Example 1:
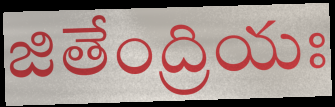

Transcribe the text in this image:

జితేంద్రియః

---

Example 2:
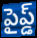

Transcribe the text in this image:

పైప్డ్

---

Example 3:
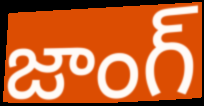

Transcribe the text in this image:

జాంగ్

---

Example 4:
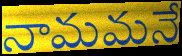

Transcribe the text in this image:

నామమనే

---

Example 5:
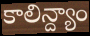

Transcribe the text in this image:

కాలిన్ద్యాం